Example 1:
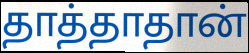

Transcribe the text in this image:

தாத்தாதான்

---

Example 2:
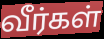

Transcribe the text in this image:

வீர்கள்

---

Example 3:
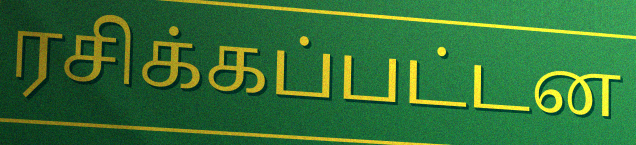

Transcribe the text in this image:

ரசிக்கப்பட்டன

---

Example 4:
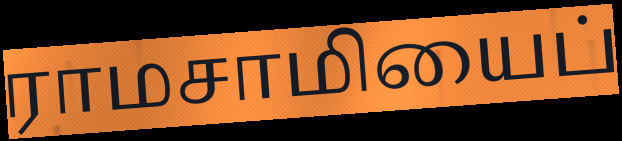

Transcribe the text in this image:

ராமசாமியைப்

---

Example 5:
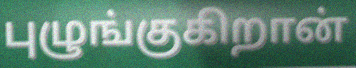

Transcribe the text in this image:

புழுங்குகிறான்